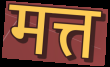
मत्त